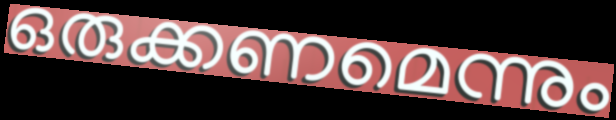
ഒരുക്കണമെന്നും